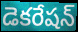
డెకరేషన్